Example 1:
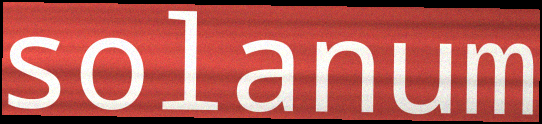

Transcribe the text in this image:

solanum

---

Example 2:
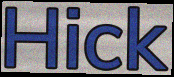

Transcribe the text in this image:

Hick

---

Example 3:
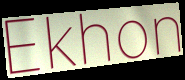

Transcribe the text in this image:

Ekhon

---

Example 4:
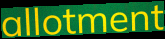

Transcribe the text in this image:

allotment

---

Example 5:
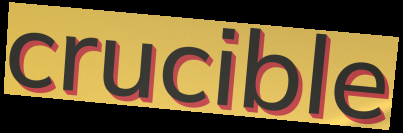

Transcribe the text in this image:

crucible